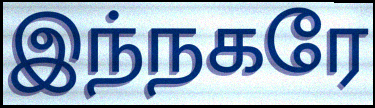
இந்நகரே